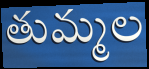
తుమ్మల